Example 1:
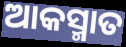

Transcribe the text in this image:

ଆକସ୍ମାତ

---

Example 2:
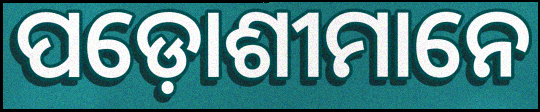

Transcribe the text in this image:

ପଡ଼ୋଶୀମାନେ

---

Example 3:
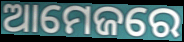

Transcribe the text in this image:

ଆମେଜରେ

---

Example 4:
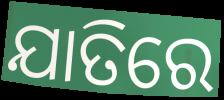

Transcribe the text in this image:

ଯାତିରେ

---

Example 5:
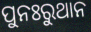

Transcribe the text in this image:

ପୁନଃରୁଥାନ